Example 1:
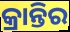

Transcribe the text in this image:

କ୍ରାନ୍ତିର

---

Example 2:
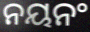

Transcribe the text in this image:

ନୟନଂ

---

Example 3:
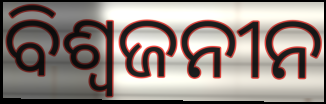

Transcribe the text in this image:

ବିଶ୍ବଜନୀନ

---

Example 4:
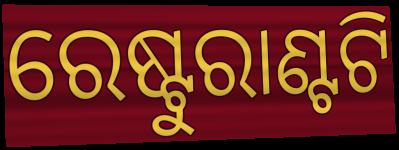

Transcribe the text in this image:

ରେଷ୍ଟୁରାଣ୍ଟଟି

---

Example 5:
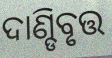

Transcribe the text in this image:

ଦାଣ୍ଡିବୃତ୍ତ